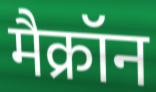
मैक्रॉन